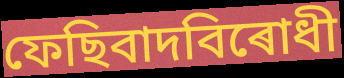
ফেছিবাদবিৰোধী